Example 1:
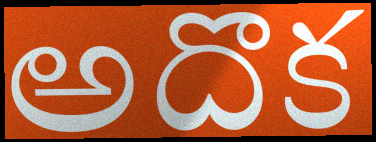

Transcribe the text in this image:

అదొక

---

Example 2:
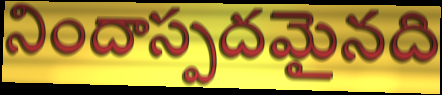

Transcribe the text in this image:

నిందాస్పదమైనది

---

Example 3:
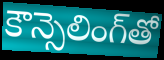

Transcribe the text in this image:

కౌన్సెలింగ్‌తో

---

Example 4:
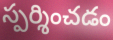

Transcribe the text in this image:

స్పర్శించడం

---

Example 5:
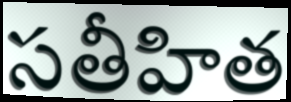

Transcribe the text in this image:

సతీహిత